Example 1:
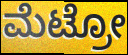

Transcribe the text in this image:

ಮೆಟ್ರೋ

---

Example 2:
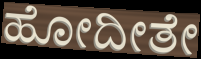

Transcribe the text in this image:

ಹೋದೀತೇ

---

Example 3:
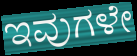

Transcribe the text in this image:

ಇವುಗಳೇ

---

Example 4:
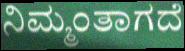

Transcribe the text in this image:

ನಿಮ್ಮಂತಾಗದೆ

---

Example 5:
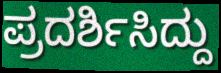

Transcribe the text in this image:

ಪ್ರದರ್ಶಿಸಿದ್ದು